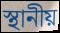
স্থানীয়